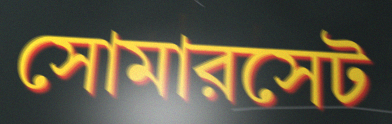
সোমারসেট